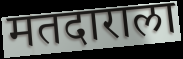
मतदाराला